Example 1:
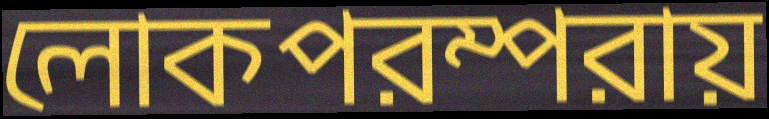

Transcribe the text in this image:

লোকপরম্পরায়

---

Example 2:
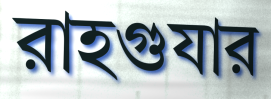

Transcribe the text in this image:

রাহগুযার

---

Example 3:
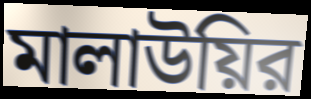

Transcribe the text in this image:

মালাউয়ির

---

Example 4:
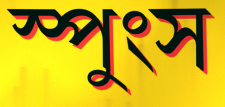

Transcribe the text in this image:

স্পুংস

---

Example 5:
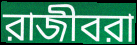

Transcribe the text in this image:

রাজীবরা